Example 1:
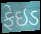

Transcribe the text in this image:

ફેઇડ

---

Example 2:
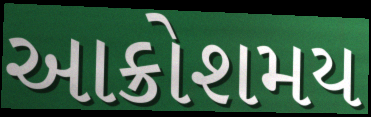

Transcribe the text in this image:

આક્રોશમય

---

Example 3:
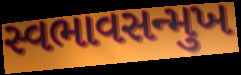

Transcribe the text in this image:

સ્વભાવસન્મુખ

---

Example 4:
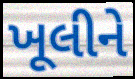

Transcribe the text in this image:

ખૂલીને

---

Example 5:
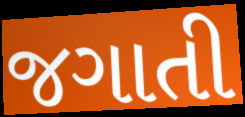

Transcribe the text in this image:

જગાતી